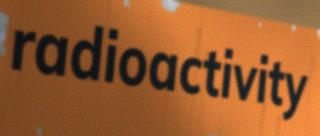
radioactivity